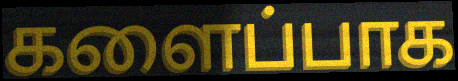
களைப்பாக